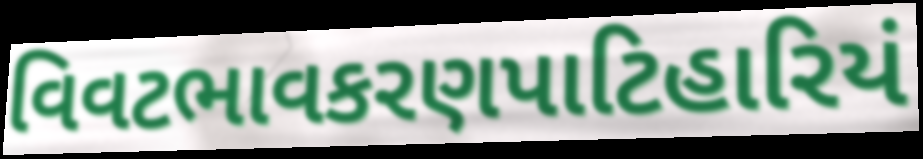
વિવટભાવકરણપાટિહારિયં